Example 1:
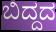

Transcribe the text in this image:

ಬಿದ್ದದ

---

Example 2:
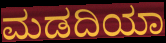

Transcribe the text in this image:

ಮಡದಿಯಾ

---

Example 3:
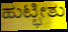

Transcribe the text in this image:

ಹುಟ್ಟೀತು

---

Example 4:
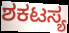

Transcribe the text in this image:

ಶಕಟಸ್ಯ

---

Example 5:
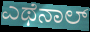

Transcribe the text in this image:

ಎಥೆನಾಲ್